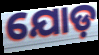
ଯୋଡ଼